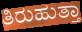
ತಿರುಹುತ್ತಾ